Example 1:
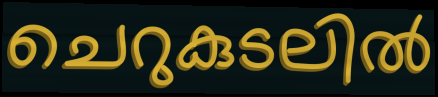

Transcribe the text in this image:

ചെറുകുടലിൽ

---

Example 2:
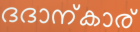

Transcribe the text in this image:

ദദാന്കാര്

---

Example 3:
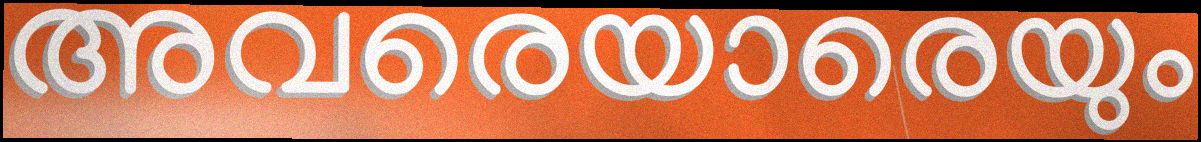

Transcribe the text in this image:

അവരെയാരെയും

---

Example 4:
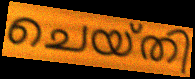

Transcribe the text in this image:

ചെയ്‌തി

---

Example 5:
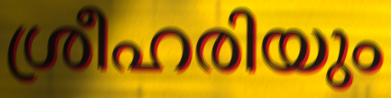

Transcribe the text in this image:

ശ്രീഹരിയും